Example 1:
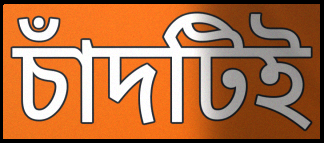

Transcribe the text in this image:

চাঁদটিই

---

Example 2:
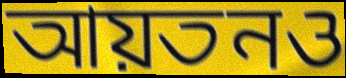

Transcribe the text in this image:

আয়তনও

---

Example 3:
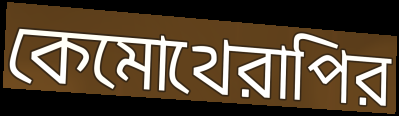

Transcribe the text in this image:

কেমোথেরাপির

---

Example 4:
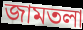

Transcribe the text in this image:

জামতলা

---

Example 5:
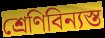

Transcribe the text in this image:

শ্রেণিবিন্যস্ত